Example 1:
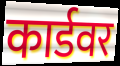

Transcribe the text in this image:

कार्डवर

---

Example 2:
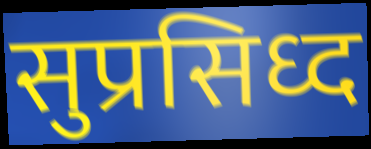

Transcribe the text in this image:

सुप्रसिध्द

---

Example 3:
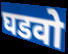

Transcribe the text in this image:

घडवो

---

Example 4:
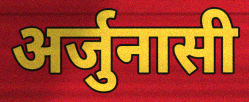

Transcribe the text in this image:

अर्जुनासी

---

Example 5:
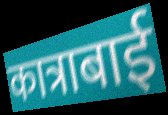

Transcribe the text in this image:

कात्राबाई